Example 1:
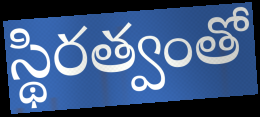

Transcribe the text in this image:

స్థిరత్వంతో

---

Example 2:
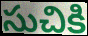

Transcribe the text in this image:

సుచికి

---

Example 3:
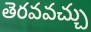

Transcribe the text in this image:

తెరవవచ్చు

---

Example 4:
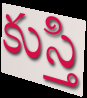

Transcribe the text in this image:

కుస్తి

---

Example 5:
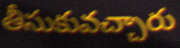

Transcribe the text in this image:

తీసుకువచ్చారు